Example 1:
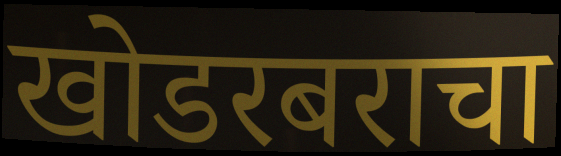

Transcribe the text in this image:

खोडरबराचा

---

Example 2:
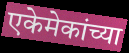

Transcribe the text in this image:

एकेमेकांच्या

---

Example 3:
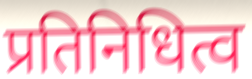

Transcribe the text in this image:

प्रतिनिधित्व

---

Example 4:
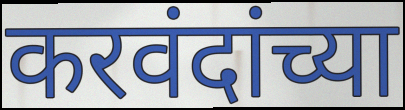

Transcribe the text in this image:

करवंदांच्या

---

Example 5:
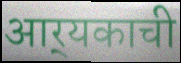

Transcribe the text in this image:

आर्यकाची